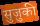
सुजुकी